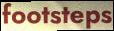
footsteps